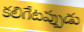
కలిగేటప్పుడు